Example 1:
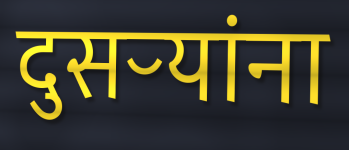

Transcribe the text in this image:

दुसऱ्यांना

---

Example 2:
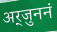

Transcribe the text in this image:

अर्जुननं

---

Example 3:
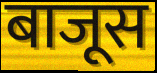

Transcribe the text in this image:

बाजूस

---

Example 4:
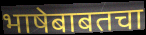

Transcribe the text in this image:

भाषेबाबतचा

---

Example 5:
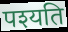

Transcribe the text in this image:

पश्यति